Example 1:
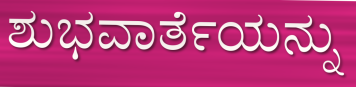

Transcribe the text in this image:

ಶುಭವಾರ್ತೆಯನ್ನು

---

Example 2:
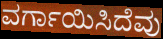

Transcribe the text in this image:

ವರ್ಗಾಯಿಸಿದೆವು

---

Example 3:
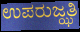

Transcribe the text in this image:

ಉಪರುಜ್ಝತಿ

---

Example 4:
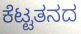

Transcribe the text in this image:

ಕೆಟ್ಟತನದ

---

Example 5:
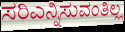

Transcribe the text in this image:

ಸರಿಎನ್ನಿಸುವಂತಿಲ್ಲ